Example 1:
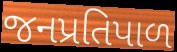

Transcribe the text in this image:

જનપ્રતિપાળ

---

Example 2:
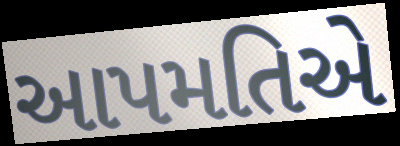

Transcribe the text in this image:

આપમતિએ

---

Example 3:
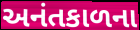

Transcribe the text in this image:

અનંતકાળના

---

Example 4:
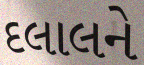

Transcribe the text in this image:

દલાલને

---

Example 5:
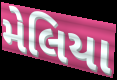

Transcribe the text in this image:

મેલિયા